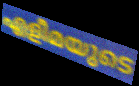
എളീമയുടെ